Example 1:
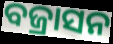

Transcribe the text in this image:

ବଜ୍ରାସନ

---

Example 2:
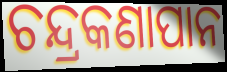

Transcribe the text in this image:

ଚନ୍ଦ୍ରକଣାପାନ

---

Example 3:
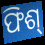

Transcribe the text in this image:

ଫିଶ୍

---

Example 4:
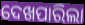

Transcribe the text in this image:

ଦେଖପାରିଲା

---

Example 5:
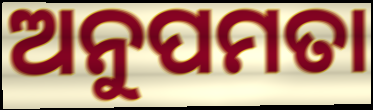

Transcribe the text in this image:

ଅନୁପମତା